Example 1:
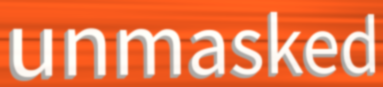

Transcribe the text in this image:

unmasked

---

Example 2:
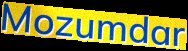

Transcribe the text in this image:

Mozumdar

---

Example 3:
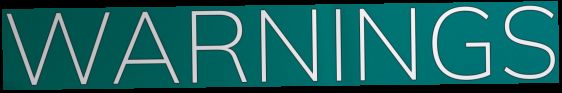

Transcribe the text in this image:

WARNINGS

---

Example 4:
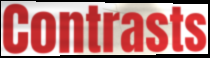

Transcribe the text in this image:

Contrasts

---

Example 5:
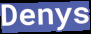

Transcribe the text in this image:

Denys